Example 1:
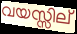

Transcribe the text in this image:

വയസ്സില്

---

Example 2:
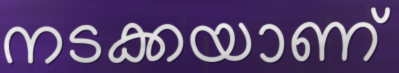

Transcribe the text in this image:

നടക്കയാണ്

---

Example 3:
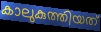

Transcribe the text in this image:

കാലുകുത്തിയത്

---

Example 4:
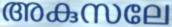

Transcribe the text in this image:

അകുസലേ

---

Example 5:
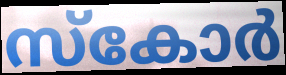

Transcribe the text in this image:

സ്കോർ